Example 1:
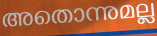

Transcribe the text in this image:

അതൊന്നുമല്ല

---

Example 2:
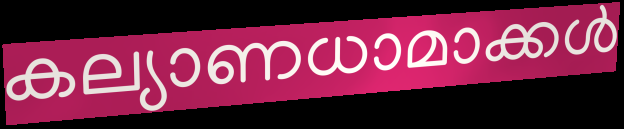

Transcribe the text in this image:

കല്യാണധാമാക്കൾ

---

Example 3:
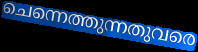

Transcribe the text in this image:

ചെന്നെത്തുന്നതുവരെ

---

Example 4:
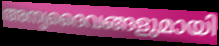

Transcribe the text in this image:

അന്യദൈവങ്ങളുമായി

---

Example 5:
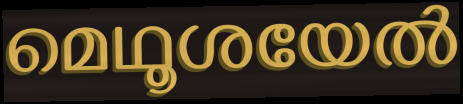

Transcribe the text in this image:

മെഥൂശയേൽ